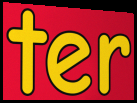
ter